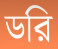
ডরি